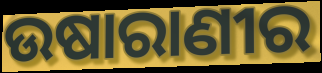
ଉଷାରାଣୀର